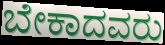
ಬೇಕಾದವರು